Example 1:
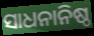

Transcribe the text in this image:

ସାଧନାନିଷ୍ଠ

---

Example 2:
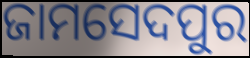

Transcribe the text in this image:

ଜାମସେଦପୁର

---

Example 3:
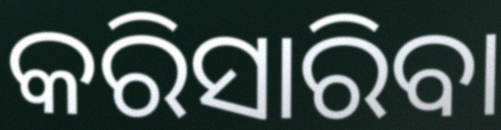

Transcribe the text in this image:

କରିସାରିବା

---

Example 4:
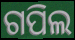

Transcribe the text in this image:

ଗପିଲ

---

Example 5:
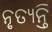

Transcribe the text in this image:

ନୃତ୍ୟନ୍ତି